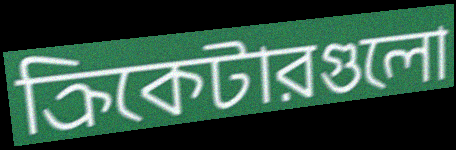
ক্রিকেটারগুলো